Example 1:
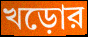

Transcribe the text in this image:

খড়োর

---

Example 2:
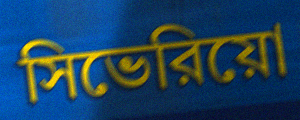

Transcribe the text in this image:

সিভেরিয়ো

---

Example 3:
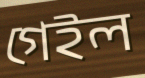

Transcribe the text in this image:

গেইল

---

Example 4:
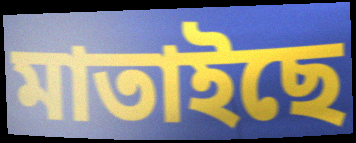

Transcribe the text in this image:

মাতাইছে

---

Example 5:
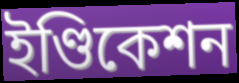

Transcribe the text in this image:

ইণ্ডিকেশন